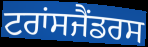
ਟਰਾਂਸਜੈਂਡਰਸ